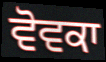
ਵੋਵਕਾ